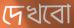
দেখবো